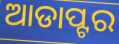
ଆଡାପ୍ଟର